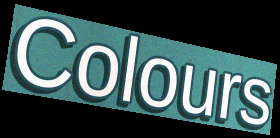
Colours